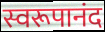
स्‍वरूपानंद